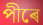
পীৰে